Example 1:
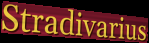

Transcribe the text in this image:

Stradivarius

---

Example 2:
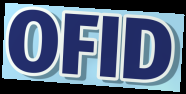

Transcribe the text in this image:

OFID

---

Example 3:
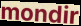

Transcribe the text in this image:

mondir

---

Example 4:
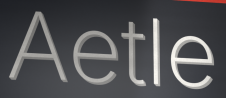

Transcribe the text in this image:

Aetle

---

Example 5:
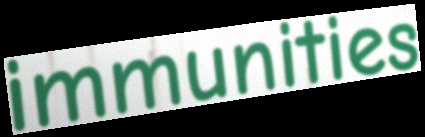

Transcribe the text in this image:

immunities